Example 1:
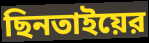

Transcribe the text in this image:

ছিনতাইয়ের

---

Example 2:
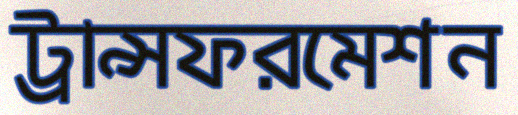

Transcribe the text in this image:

ট্রান্সফরমেশন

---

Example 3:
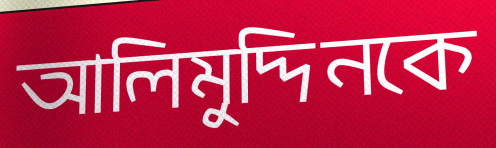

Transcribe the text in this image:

আলিমুদ্দিনকে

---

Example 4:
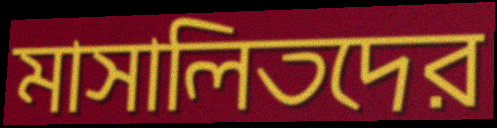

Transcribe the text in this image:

মাসালিতদের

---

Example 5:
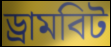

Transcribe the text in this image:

ড্রামবিট